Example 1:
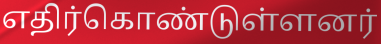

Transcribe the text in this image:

எதிர்கொண்டுள்ளனர்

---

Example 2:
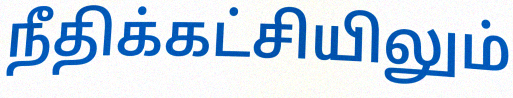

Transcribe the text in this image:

நீதிக்கட்சியிலும்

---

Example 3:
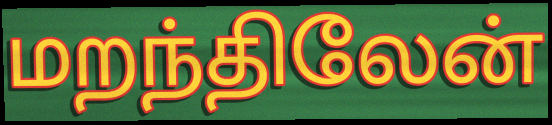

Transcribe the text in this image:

மறந்திலேன்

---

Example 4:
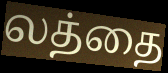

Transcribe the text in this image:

லத்தை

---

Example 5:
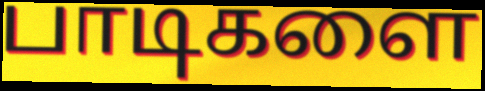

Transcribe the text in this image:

பாடிகளை